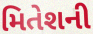
મિતેશની